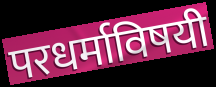
परधर्माविषयी